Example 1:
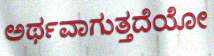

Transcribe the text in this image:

ಅರ್ಥವಾಗುತ್ತದೆಯೋ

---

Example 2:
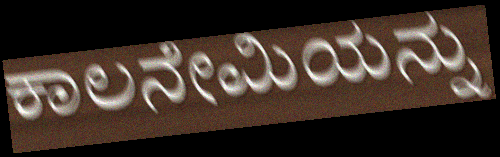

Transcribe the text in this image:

ಕಾಲನೇಮಿಯನ್ನು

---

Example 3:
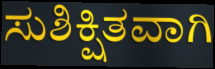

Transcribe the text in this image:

ಸುಶಿಕ್ಷಿತವಾಗಿ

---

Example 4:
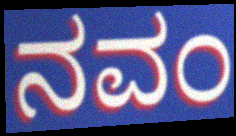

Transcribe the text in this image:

ನವಂ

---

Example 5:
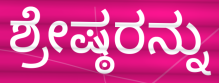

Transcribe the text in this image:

ಶ್ರೇಷ್ಠರನ್ನು